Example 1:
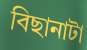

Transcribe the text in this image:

বিছানাটা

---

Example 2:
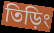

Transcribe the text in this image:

তিড়িং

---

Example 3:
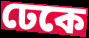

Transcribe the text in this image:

ঢেকে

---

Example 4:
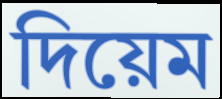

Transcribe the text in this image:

দিয়েম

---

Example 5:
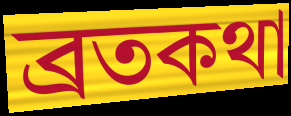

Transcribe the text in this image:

ব্রতকথা